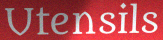
Utensils